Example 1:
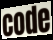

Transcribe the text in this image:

code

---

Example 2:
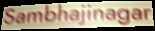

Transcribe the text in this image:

Sambhajinagar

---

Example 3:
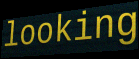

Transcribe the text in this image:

looking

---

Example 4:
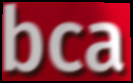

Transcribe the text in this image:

bca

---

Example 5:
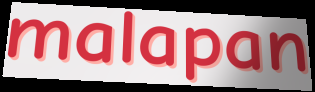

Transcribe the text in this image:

malapan